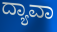
ದ್ಯಾವಾ